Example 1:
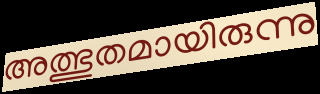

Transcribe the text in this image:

അത്ഭുതമായിരുന്നു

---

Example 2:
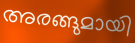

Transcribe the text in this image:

അരങ്ങുമായി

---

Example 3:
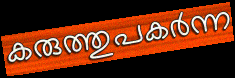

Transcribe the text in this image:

കരുത്തുപകർന്ന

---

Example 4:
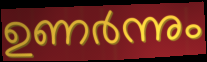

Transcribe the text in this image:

ഉണർന്നും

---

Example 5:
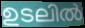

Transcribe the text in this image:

ഉടലിൽ